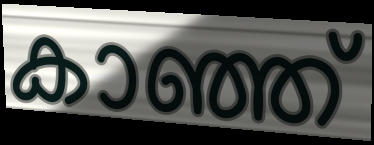
കാഞ്ഞ്